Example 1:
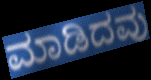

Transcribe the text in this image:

ಮಾಡಿದವು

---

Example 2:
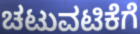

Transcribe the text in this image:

ಚಟುವಟಿಕೆಗೆ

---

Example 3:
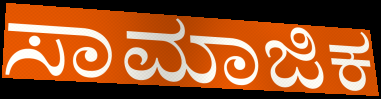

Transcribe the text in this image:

ಸಾಮಾಜಿಕ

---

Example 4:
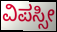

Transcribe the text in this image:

ವಿಪಸ್ಸೀ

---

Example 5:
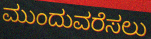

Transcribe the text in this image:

ಮುಂದುವರೆಸಲು